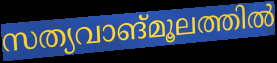
സത്യവാങ്മൂലത്തിൽ